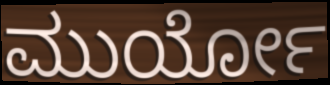
ಮುರ್ಯೋ